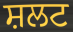
ਸ਼ਲਟ